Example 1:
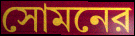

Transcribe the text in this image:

সোমনের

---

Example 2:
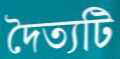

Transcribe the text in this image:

দৈত্যটি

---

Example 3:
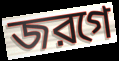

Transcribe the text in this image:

জরগে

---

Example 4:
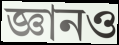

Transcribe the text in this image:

জ্ঞানও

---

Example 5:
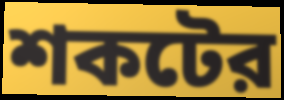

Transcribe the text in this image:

শকটের